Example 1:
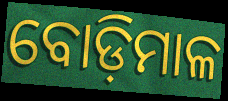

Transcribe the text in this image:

ବୋଡ଼ିମାଳ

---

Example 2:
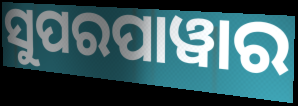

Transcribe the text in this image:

ସୁପରପାୱାର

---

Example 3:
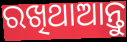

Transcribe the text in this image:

ରଖିଥାଆନ୍ତୁ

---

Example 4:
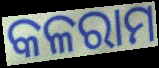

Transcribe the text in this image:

କଳରାମ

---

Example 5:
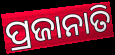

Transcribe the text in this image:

ପ୍ରଜାନାତି